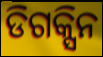
ଡିଗକ୍ସିନ